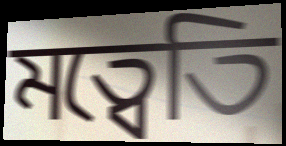
মত্বেতি